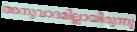
അനുവാദമില്ലായിരുന്നു